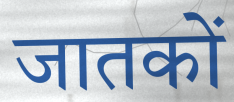
जातकों